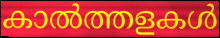
കാൽത്തളകൾ